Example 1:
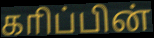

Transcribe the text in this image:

கரிப்பின்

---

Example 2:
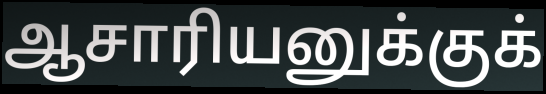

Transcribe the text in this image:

ஆசாரியனுக்குக்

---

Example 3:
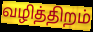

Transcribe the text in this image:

வழித்திறம்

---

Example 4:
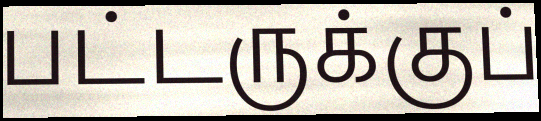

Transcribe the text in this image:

பட்டருக்குப்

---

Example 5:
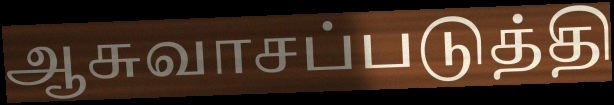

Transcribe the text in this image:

ஆசுவாசப்படுத்தி